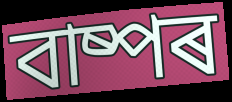
বাষ্পৰ